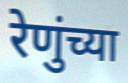
रेणुंच्या